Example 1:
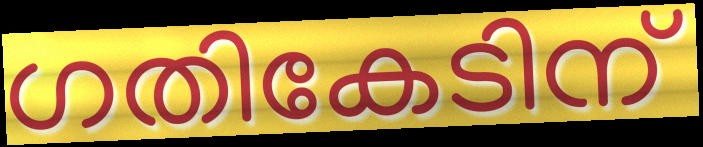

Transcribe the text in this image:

ഗതികേടിന്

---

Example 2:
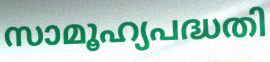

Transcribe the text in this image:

സാമൂഹ്യപദ്ധതി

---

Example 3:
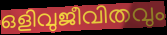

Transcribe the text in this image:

ഒളിവുജീവിതവും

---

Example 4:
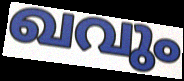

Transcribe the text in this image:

ഖവും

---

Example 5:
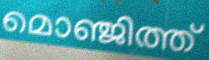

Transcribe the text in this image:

മൊഞ്ജിത്ത്